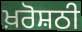
ਖ਼ਰੋਸ਼ਠੀ